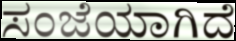
ಸಂಜೆಯಾಗಿದೆ